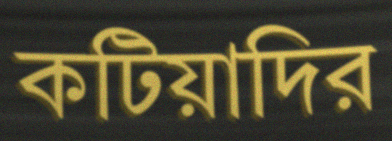
কটিয়াদির